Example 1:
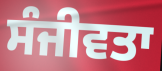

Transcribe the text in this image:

ਸੰਜੀਵਤਾ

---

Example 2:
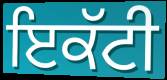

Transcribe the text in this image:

ਇਕੱਟੀ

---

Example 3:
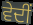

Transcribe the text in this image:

ਵੇਦੀਂ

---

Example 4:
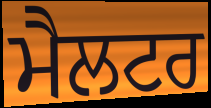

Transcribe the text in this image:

ਮੈਲਟਰ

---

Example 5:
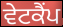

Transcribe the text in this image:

ਵੇਟਕੈਂਪ